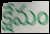
క్షేమం